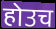
होउच